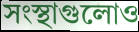
সংস্থাগুলোও